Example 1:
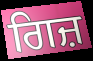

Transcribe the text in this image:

ਗਿਜ਼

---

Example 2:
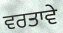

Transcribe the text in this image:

ਵਰਤਾਵੇ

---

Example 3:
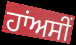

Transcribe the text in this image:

ਹਾਂਅਸੀਂ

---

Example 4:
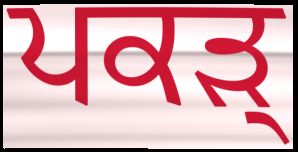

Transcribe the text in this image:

ਪਕੜ੍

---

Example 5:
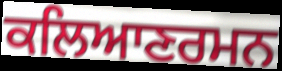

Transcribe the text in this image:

ਕਲਿਆਣਰਮਨ